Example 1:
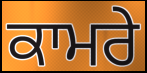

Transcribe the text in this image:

ਕਾਮਰੇ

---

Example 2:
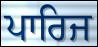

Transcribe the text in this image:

ਪਾਰਿਜ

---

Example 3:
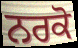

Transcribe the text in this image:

ਨਰਕੋ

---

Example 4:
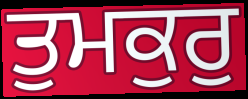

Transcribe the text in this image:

ਤੁਮਕੁਰੁ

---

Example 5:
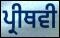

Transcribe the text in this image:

ਪ੍ਰੀਥਵੀ